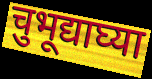
चुभूद्याघ्या